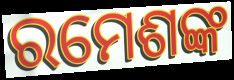
ରମେଶଙ୍କ